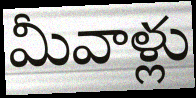
మీవాళ్లు